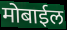
मोबाईल